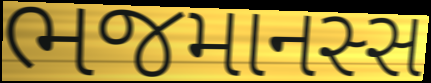
ભજમાનસ્સ